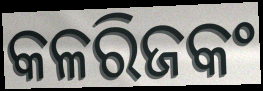
କଳରିଜକଂ